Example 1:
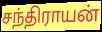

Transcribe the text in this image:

சந்திராயன்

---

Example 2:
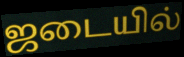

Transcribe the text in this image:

ஜடையில்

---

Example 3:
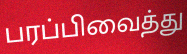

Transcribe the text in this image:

பரப்பிவைத்து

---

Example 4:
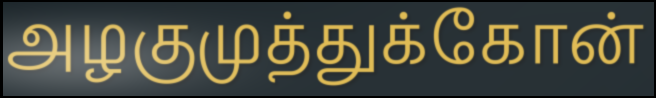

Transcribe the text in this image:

அழகுமுத்துக்கோன்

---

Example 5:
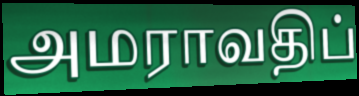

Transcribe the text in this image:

அமராவதிப்